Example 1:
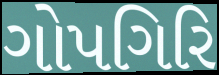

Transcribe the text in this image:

ગોપગિરિ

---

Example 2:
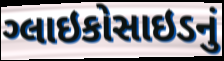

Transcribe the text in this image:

ગ્લાઇકોસાઇડનું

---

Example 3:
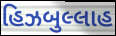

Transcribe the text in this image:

હિઝબુલ્લાહ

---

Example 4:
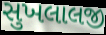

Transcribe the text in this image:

સુખલાલજી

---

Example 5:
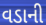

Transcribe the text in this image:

વડાની